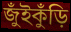
জুঁইকুঁড়ি